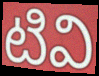
టివి